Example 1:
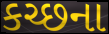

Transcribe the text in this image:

કચ્છના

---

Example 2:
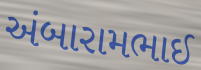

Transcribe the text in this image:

અંબારામભાઈ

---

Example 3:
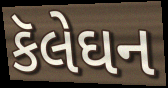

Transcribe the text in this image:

કૅલેઘન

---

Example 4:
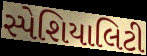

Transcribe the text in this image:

સ્પેશિયાલિટી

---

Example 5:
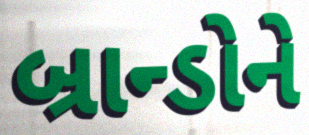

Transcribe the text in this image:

બ્રાન્ડોને